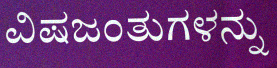
ವಿಷಜಂತುಗಳನ್ನು